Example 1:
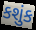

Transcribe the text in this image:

કશુંક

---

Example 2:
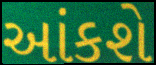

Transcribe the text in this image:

આંકશે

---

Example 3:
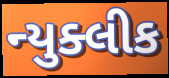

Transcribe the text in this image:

ન્યુક્લીક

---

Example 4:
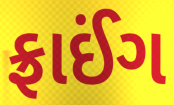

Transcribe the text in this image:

ફ્રાઈંગ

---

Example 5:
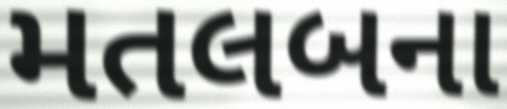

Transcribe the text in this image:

મતલબના